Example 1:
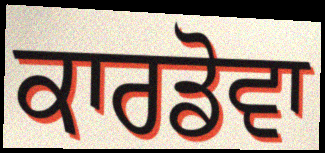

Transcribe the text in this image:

ਕਾਰਡੋਵਾ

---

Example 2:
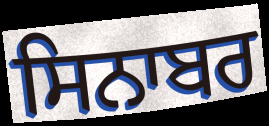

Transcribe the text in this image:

ਸਿਨਾਬਰ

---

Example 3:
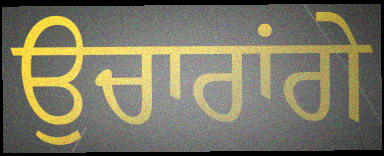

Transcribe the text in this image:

ਉਚਾਰਾਂਗੇ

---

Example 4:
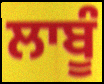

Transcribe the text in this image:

ਲਾਬੂੰ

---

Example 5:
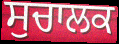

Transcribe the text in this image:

ਸੁਚਾਲਕ